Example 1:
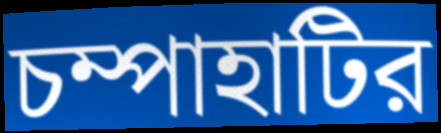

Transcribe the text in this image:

চম্পাহাটির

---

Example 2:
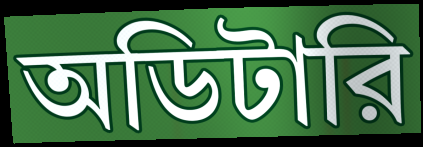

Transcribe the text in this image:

অডিটারি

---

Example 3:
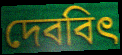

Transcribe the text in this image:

দেববিৎ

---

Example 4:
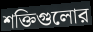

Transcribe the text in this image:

শক্তিগুলোর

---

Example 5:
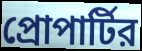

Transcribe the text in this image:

প্রোপার্টির